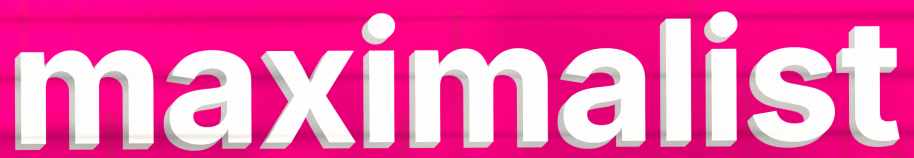
maximalist